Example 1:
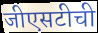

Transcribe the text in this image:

जीएसटीची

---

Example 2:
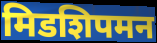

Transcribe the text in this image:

मिडशिपमन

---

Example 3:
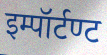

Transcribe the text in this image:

इम्पॉर्टण्ट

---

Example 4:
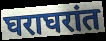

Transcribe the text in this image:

घराघरांत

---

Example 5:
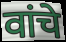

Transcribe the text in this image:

वांचे